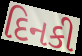
દિનકી